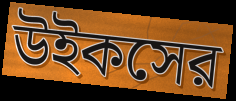
উইকসের